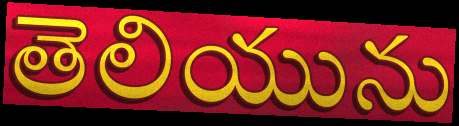
తెలియును